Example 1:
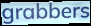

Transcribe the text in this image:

grabbers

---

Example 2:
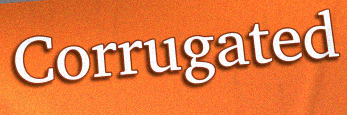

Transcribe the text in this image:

Corrugated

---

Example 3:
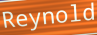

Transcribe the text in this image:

Reynold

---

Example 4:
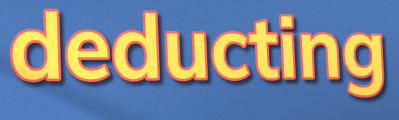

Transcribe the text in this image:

deducting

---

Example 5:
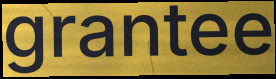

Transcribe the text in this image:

grantee